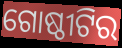
ଗୋଷ୍ଠୀଟିର